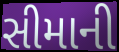
સીમાની